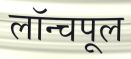
लॉन्चपूल